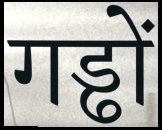
गड्ढों